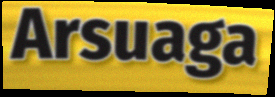
Arsuaga